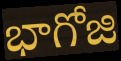
భాగోజి